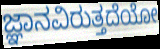
ಜ್ಞಾನವಿರುತ್ತದೆಯೋ